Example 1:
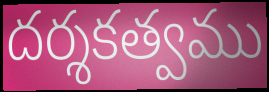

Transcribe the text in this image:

దర్శకత్వము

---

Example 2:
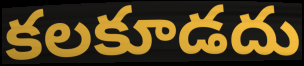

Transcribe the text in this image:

కలకూడదు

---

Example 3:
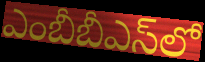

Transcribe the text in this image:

ఎంబీబీఎస్‌లో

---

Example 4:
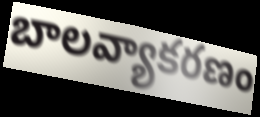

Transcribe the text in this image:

బాలవ్యాకరణం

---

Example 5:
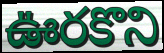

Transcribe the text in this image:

ఊరకొని